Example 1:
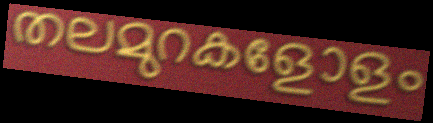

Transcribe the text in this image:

തലമുറകളോളം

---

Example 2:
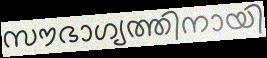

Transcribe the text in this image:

സൗഭാഗ്യത്തിനായി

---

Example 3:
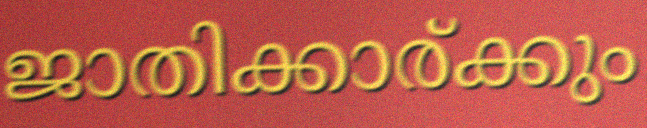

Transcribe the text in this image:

ജാതിക്കാര്ക്കും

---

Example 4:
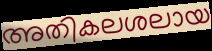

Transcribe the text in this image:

അതികലശലായ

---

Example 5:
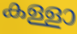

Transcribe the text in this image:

കള്ളാ